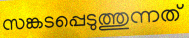
സങ്കടപ്പെടുത്തുന്നത്